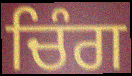
ਚਿੰਗ